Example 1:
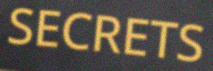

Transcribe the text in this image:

SECRETS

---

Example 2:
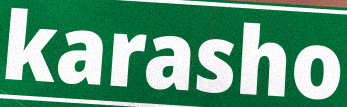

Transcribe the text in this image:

karasho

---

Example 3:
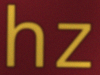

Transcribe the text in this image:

hz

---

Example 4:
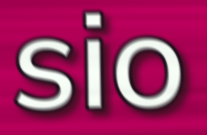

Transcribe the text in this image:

sio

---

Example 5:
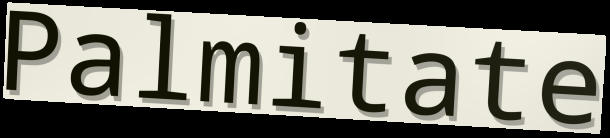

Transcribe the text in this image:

Palmitate